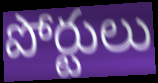
పోర్టులు